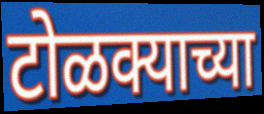
टोळक्याच्या